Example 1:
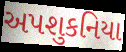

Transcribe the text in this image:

અપશુકનિયા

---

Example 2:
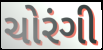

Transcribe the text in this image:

ચોરંગી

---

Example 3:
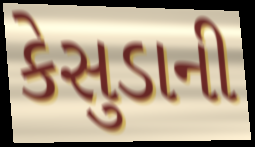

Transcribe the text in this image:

કેસુડાની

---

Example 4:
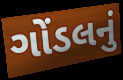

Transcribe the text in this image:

ગોંડલનું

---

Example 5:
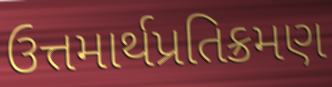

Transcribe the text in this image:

ઉત્તમાર્થપ્રતિક્રમણ